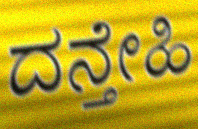
ದನ್ತೇಹಿ